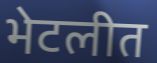
भेटलीत